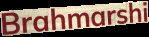
Brahmarshi